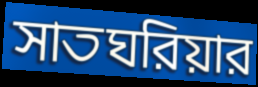
সাতঘরিয়ার